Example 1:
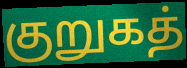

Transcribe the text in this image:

குறுகத்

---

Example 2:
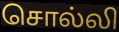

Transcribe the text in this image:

சொல்லி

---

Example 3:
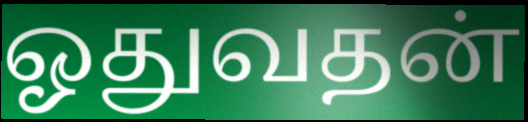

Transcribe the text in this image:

ஓதுவதன்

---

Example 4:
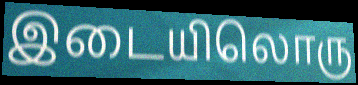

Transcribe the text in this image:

இடையிலொரு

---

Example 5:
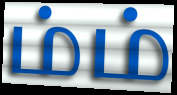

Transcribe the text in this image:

ம்ம்